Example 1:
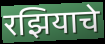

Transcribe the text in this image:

रझियाचे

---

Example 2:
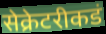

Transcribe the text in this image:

सेक्रेटरीकडं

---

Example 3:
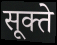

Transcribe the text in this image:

सूक्ते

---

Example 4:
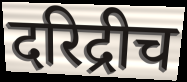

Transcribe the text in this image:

दरिद्रीच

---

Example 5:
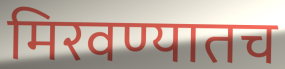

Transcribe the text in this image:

मिरवण्यातच